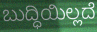
ಬುದ್ಧಿಯಿಲ್ಲದೆ